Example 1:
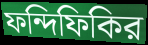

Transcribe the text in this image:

ফন্দিফিকির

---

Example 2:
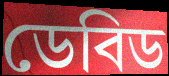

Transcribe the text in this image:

ডেবিড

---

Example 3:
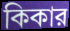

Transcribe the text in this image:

কিকার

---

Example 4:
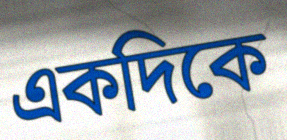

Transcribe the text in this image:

একদিকে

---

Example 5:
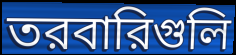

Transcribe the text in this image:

তরবারিগুলি